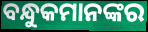
ବନ୍ଧୁକମାନଙ୍କର